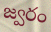
జ్వరం